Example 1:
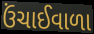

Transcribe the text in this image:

ઉંચાઈવાળા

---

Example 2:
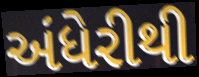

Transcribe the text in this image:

અંધેરીથી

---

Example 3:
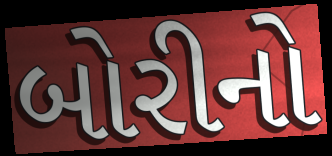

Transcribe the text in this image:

બોરીનો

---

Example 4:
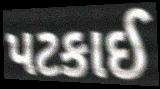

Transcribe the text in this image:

પટકાઈ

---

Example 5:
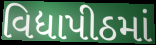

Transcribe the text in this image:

વિદ્યાપીઠમાં